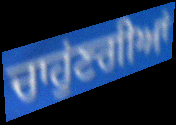
ਚਾਹੁਂਣਗੀਆਂ